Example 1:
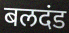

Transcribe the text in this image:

बलदंड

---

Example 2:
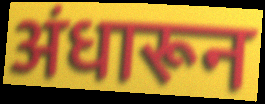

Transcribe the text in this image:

अंधारून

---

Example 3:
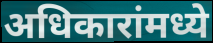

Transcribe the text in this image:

अधिकारांमध्ये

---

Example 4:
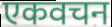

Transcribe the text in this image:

एकवचन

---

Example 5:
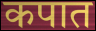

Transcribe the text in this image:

कपात